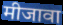
मीजावा